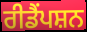
ਰੀਡੈਂਪਸ਼ਨ